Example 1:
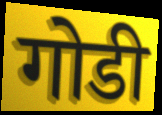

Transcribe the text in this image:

गोडी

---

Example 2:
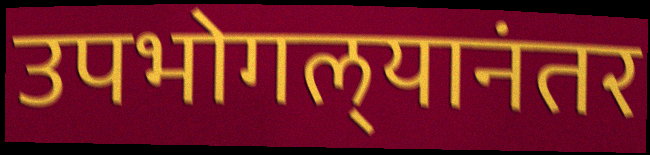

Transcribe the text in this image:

उपभोगल्यानंतर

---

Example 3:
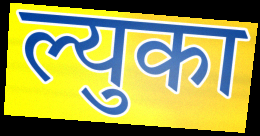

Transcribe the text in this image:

ल्युका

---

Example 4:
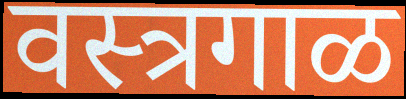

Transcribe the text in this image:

वस्त्रगाळ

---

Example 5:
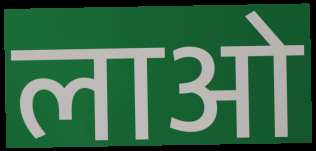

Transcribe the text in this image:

लाओ